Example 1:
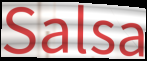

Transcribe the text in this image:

Salsa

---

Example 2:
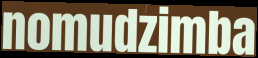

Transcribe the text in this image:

nomudzimba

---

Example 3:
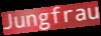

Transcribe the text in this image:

Jungfrau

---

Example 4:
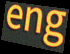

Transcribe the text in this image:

eng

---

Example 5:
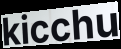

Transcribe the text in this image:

kicchu